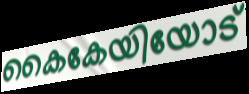
കൈകേയിയോട്